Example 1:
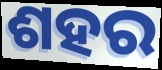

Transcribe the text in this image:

ଶହର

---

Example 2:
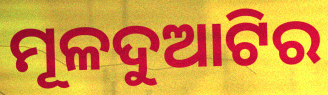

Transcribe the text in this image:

ମୂଳଦୁଆଟିର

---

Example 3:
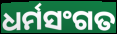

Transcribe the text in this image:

ଧର୍ମସଂଗତ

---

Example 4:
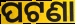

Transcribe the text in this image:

ପଟଣା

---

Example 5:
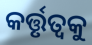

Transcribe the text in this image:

କର୍ତ୍ତୃତ୍ୱକୁ